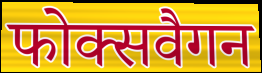
फोक्सवैगन